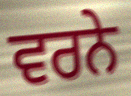
ਵਰਨੇ